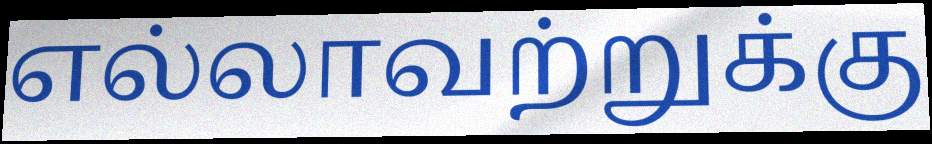
எல்லாவற்றுக்கு